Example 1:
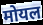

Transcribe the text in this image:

मोयल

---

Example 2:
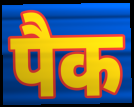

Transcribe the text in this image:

पैक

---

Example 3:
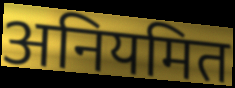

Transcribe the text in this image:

अनियमित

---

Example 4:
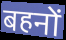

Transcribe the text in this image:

बहनों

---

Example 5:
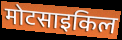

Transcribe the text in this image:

मोटसाइकिल